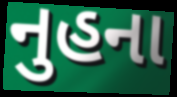
નુહના